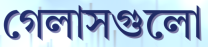
গেলাসগুলো